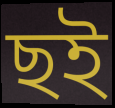
ছই